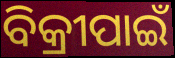
ବିକ୍ରୀପାଇଁ